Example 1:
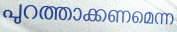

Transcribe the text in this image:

പുറത്താക്കണമെന്ന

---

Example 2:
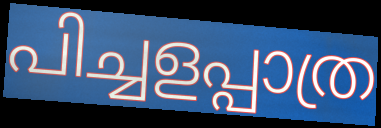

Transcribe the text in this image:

പിച്ചളപ്പാത്ര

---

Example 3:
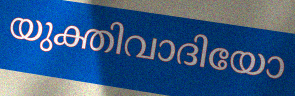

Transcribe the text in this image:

യുക്തിവാദിയോ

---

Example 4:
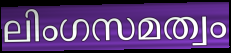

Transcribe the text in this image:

ലിംഗസമത്വം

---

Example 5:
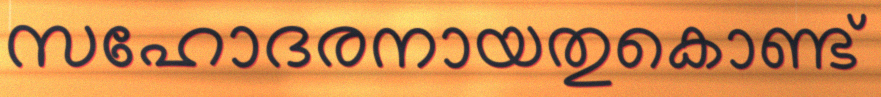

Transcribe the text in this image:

സഹോദരനായതുകൊണ്ട്